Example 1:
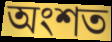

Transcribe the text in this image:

অংশত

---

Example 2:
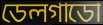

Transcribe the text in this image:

ডেলগাডো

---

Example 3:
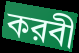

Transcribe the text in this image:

করবী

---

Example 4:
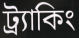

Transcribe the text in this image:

ট্র্যাকিং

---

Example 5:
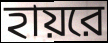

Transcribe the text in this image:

হায়রে